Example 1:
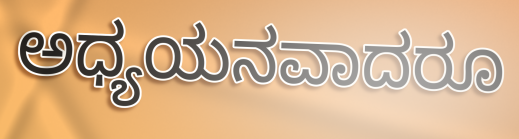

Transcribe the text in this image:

ಅಧ್ಯಯನವಾದರೂ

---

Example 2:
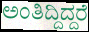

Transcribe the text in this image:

ಅಂತಿದ್ದಿದ್ದರೆ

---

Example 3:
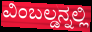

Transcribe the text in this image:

ವಿಂಬಲ್ಡನ್ನಲ್ಲಿ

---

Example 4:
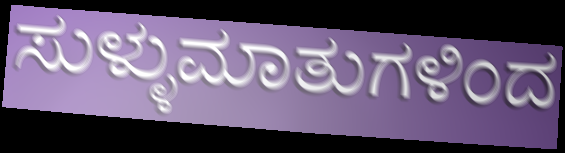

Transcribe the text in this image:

ಸುಳ್ಳುಮಾತುಗಳಿಂದ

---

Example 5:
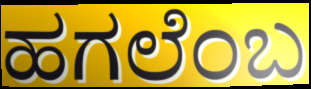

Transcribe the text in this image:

ಹಗಲೆಂಬ